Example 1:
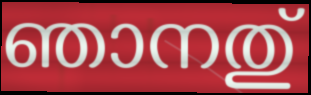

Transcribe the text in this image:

ഞാനതു്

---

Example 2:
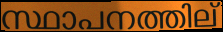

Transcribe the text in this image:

സ്ഥാപനത്തില്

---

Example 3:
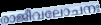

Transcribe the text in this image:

രാജീവലോചനഃ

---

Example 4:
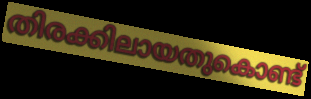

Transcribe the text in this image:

തിരക്കിലായതുകൊണ്ട്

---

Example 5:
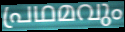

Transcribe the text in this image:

പ്രഥമവും